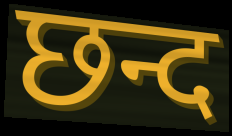
छन्‍द